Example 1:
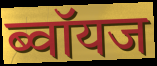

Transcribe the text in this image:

ब्वॉयज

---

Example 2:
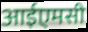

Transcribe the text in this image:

आईएमसी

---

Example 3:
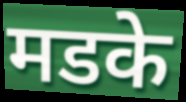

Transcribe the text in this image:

मडके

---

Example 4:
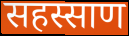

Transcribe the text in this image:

सहस्साण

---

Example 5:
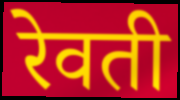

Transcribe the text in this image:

रेवती